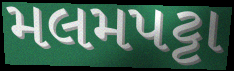
મલમપટ્ટા